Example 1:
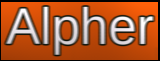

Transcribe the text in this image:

Alpher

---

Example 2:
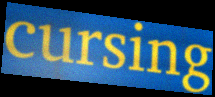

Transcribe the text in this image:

cursing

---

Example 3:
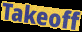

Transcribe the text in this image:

Takeoff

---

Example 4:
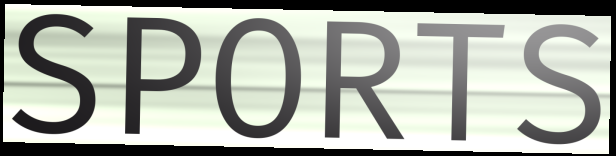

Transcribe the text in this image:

SPORTS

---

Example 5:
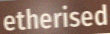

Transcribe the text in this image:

etherised